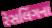
રેસલિંગના